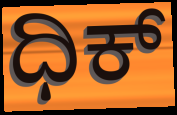
ಧಿಕ್